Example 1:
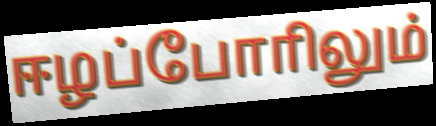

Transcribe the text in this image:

ஈழப்போரிலும்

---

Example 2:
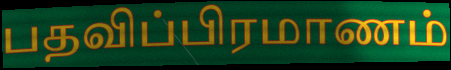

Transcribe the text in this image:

பதவிப்பிரமாணம்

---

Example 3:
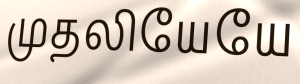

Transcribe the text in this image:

முதலியேயே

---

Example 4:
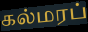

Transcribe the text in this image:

கல்மரப்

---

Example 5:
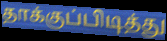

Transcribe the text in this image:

தாக்குப்பிடித்து